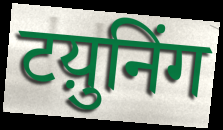
टय़ुनिंग